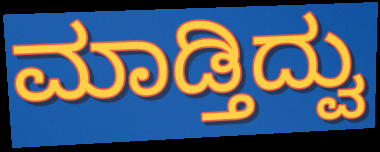
ಮಾಡ್ತಿದ್ವು